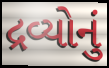
દ્રવ્યોનું